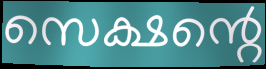
സെക്ഷന്റെ